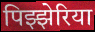
पिझ्झेरिया